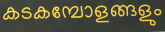
കടകമ്പോളങ്ങളും